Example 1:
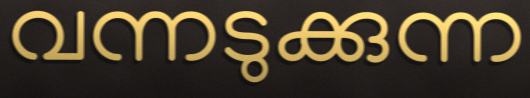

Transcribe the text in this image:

വന്നടുക്കുന്ന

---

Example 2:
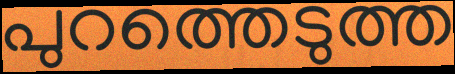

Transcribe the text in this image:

പുറത്തെടുത്ത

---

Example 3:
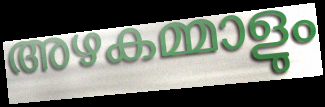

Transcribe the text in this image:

അഴകമ്മാളും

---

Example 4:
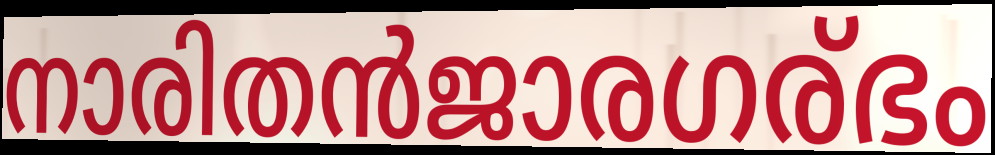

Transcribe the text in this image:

നാരിതൻജാരഗര്ഭം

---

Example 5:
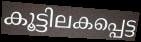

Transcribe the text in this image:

കൂട്ടിലകപ്പെട്ട